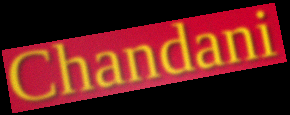
Chandani